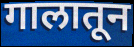
गालातून